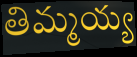
తిమ్మయ్య